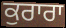
ਕੁਰਾਰਾ